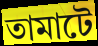
তামাটে